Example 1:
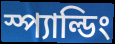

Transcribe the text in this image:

স্প্যাল্ডিং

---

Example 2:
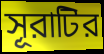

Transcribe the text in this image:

সূরাটির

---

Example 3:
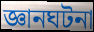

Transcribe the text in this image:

জ্ঞানঘটনা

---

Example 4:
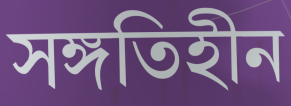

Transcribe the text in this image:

সঙ্গতিহীন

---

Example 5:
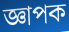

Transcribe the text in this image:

জ্ঞাপক